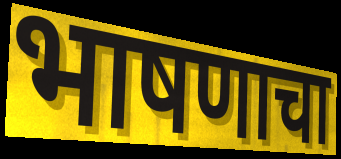
भाषणाचा